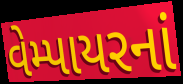
વેમ્પાયરનાં